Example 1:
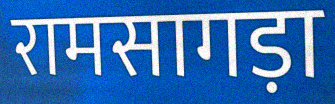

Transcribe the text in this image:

रामसागड़ा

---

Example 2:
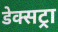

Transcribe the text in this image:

डेक्सट्रा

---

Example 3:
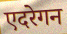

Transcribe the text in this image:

एदरेगन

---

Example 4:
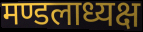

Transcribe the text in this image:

मण्डलाध्यक्ष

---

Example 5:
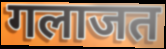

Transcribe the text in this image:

गलाजत